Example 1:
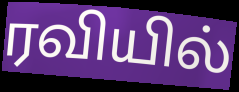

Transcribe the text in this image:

ரவியில்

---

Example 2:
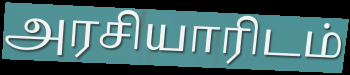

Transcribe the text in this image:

அரசியாரிடம்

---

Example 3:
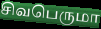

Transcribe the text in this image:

சிவபெருமா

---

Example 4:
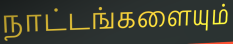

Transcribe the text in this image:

நாட்டங்களையும்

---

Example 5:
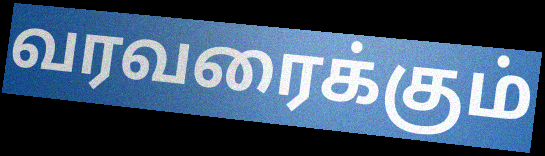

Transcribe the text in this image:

வரவரைக்கும்